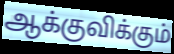
ஆக்குவிக்கும்